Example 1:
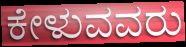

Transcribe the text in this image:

ಕೇಳುವವರು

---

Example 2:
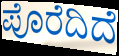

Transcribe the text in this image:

ಪೊರೆದಿದೆ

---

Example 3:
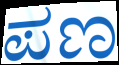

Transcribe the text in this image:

ಪಣ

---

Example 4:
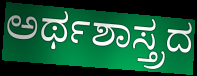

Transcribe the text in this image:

ಅರ್ಥಶಾಸ್ತ್ರದ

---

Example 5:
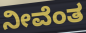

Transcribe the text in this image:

ನೀವೆಂತ